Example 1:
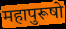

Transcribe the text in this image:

महापुरूषो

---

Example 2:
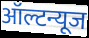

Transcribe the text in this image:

ऑल्टन्यूज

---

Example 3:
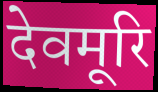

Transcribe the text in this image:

देवमूरि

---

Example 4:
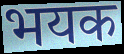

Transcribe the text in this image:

भयक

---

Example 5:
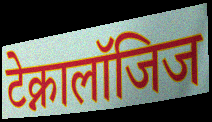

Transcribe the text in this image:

टेक्नालॉजिज